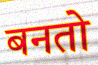
बनतो